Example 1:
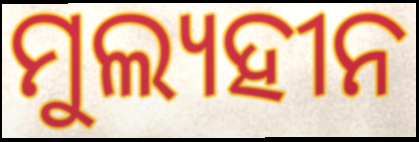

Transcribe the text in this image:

ମୁଲ୍ୟହୀନ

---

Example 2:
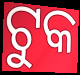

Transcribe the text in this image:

ଟୁକ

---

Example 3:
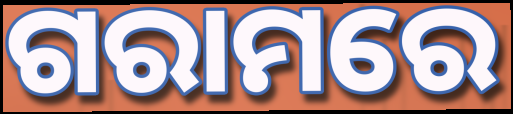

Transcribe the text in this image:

ଗରାମରେ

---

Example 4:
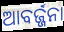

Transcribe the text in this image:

ଆବର୍ଜ୍ଜନା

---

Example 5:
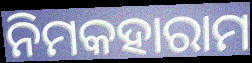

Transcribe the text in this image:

ନିମକହାରାମ